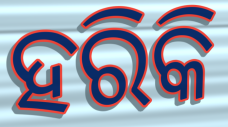
ହରିକି